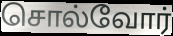
சொல்வோர்